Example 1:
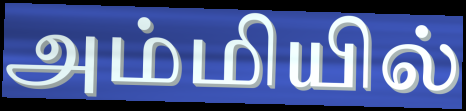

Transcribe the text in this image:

அம்மியில்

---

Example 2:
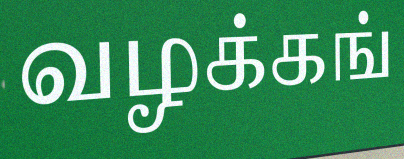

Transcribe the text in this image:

வழக்கங்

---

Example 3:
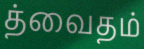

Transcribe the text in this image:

த்வைதம்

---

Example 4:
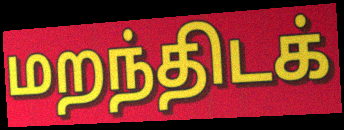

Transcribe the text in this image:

மறந்திடக்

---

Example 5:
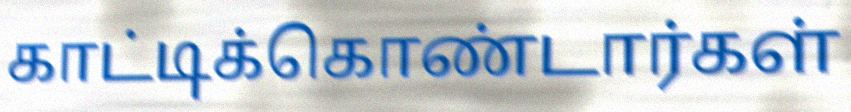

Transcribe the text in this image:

காட்டிக்கொண்டார்கள்